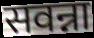
सवन्ना